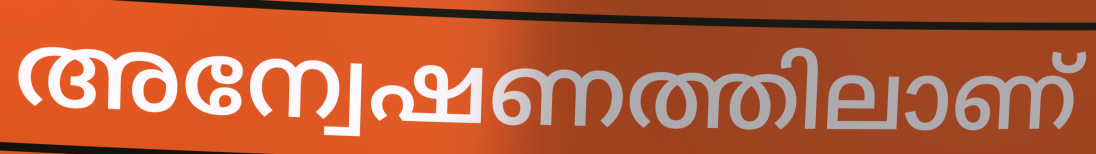
അന്വേഷണത്തിലാണ്